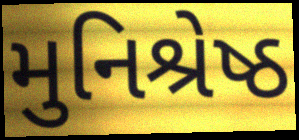
મુનિશ્રેષ્ઠ